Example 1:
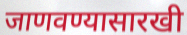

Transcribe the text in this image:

जाणवण्यासारखी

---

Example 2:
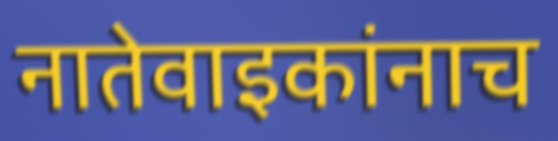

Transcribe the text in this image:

नातेवाइकांनाच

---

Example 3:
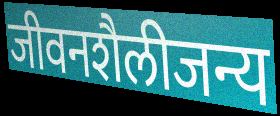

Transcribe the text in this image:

जीवनशैलीजन्य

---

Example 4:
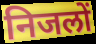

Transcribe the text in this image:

निजलों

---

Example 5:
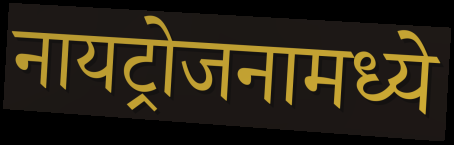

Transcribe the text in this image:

नायट्रोजनामध्ये